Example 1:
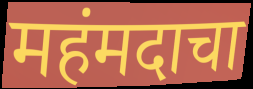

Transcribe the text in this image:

महंमदाचा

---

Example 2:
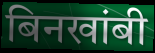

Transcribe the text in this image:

बिनखांबी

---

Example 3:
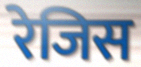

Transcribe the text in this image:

रेजिस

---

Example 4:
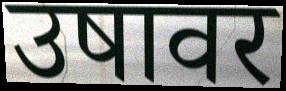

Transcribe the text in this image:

उषावर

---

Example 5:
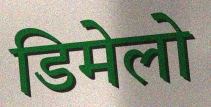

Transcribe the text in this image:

डिमेलो